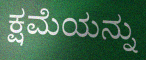
ಕ್ಷಮೆಯನ್ನು